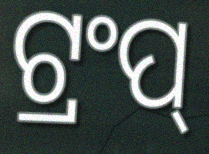
ଟ୍ରଂପ୍